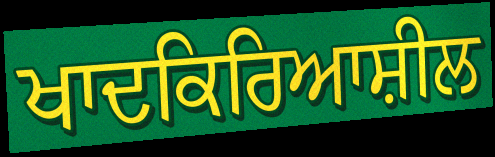
ਖਾਦਕਿਰਿਆਸ਼ੀਲ